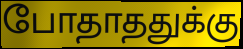
போதாததுக்கு